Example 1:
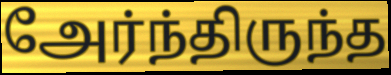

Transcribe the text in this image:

அேர்ந்திருந்த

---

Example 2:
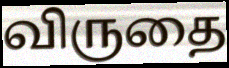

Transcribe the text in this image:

விருதை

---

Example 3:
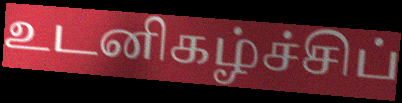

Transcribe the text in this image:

உடனிகழ்ச்சிப்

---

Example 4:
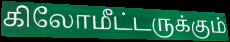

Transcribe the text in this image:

கிலோமீட்டருக்கும்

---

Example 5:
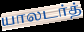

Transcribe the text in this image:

யாலடர்த்